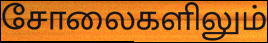
சோலைகளிலும்